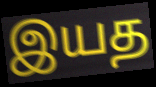
இயத